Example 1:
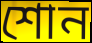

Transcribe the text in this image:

শোন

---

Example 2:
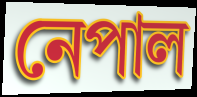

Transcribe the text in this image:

নেপাল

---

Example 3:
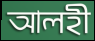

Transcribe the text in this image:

আলহী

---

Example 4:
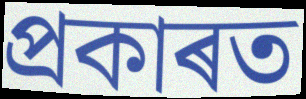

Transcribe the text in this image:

প্ৰকাৰত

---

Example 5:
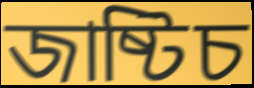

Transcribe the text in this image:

জাষ্টিচ